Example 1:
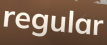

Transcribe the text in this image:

regular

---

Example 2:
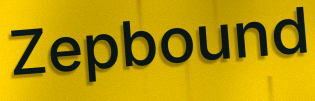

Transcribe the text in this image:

Zepbound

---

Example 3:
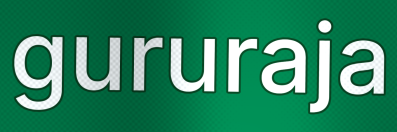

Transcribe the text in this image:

gururaja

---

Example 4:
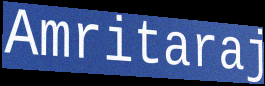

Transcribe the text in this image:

Amritaraj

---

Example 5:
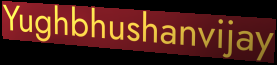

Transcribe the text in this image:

Yughbhushanvijay